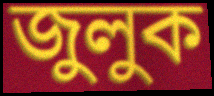
জুলুক